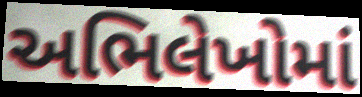
અભિલેખોમાં